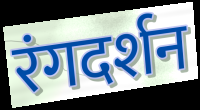
रंगदर्शन